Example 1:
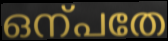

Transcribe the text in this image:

ഒന്പതേ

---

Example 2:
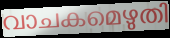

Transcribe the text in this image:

വാചകമെഴുതി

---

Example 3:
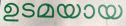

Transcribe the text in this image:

ഉടമയായ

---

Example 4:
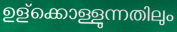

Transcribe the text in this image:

ഉള്ക്കൊള്ളുന്നതിലും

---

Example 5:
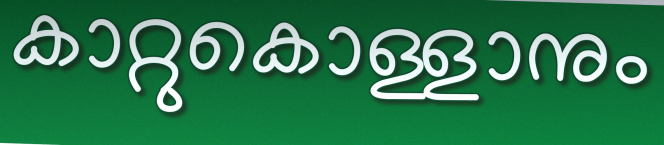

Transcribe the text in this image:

കാറ്റുകൊള്ളാനും